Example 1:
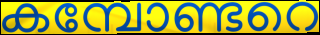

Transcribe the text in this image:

കമ്പോണ്ടറെ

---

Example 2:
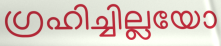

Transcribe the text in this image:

ഗ്രഹിച്ചില്ലയോ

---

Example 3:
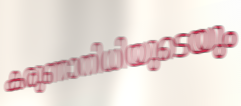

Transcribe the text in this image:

കരുണാനിധിയുടെയും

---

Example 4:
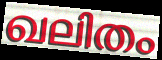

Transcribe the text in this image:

ഖലിതം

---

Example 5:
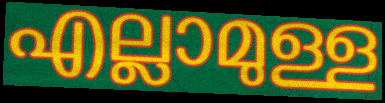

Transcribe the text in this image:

എല്ലാമുള്ള